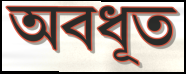
অবধূত